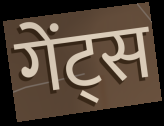
गेंट्स